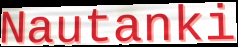
Nautanki